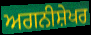
ਅਗਨੀਸ਼ੇਖਰ